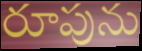
రూపును